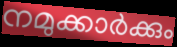
നമുക്കാർക്കും